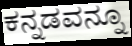
ಕನ್ನಡವನ್ನೂ